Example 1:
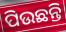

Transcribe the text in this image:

ପିଉଛନ୍ତି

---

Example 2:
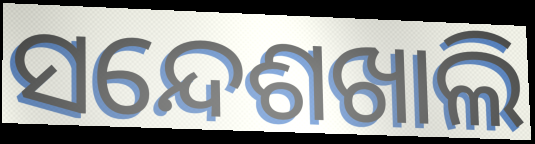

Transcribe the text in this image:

ସନ୍ଦେଶଖାଲି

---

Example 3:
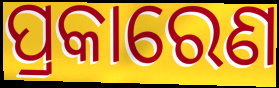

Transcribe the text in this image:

ପ୍ରକାରେଣ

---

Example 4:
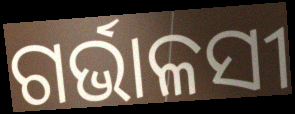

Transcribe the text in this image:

ଗର୍ଭାଳସୀ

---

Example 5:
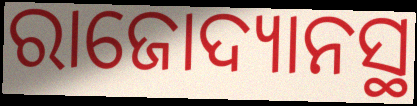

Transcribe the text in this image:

ରାଜୋଦ୍ୟାନସ୍ଥ